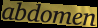
abdomen